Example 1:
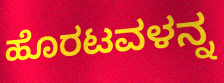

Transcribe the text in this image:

ಹೊರಟವಳನ್ನ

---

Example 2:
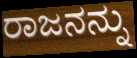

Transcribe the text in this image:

ರಾಜನನ್ನು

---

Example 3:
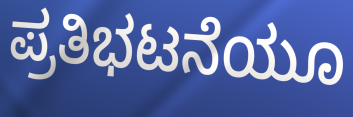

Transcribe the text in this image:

ಪ್ರತಿಭಟನೆಯೂ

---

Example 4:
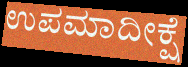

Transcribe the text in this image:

ಉಪಮಾದೀಕ್ಷೆ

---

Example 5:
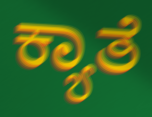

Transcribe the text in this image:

ಕ್ಯಾತೆ